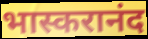
भास्करानंद